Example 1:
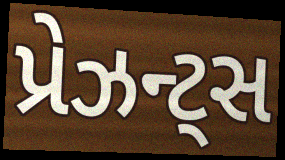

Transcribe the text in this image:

પ્રેઝન્ટ્સ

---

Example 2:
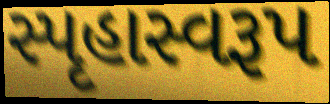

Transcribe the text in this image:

સ્પૃહાસ્વરૂપ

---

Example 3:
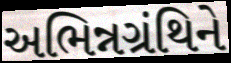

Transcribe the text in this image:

અભિન્નગ્રંથિને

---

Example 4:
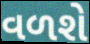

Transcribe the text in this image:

વળશે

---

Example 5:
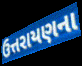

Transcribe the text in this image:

ઉત્તરાયણના